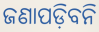
ଜଣାପଡ଼ିବନି